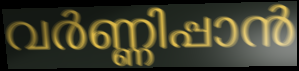
വർണ്ണിപ്പാൻ